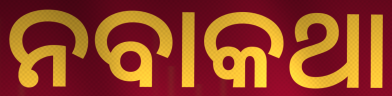
ନବାକଥା